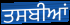
ਤਸਬੀਆਂ